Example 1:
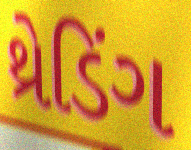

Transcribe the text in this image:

થ્રેડિંગ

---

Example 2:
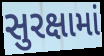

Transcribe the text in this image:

સુરક્ષામાં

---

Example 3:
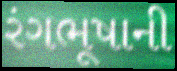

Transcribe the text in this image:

રંગભૂષાની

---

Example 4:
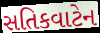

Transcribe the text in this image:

સતિકવાટેન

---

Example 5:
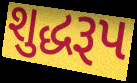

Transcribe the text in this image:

શુદ્ધરૂપ